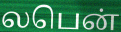
லபென்